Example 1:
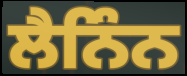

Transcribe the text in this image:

ਲੈਨਿੰਨ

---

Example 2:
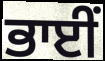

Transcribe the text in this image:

ਭਾਈੰ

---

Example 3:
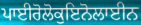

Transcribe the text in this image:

ਪਾਈਰੋਲੋਕੁਇਨੋਲਾਈਨ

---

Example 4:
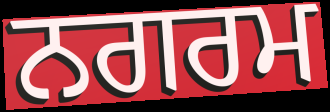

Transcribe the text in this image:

ਨਗਰਮ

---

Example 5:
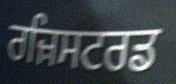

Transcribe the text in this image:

ਰਜ਼ਿਸਟਰਡ